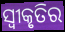
ସ୍ୱୀକୃତିର